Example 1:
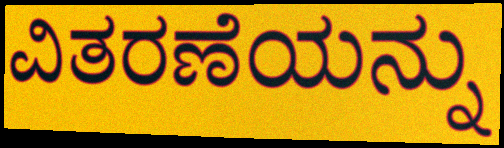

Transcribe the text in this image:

ವಿತರಣೆಯನ್ನು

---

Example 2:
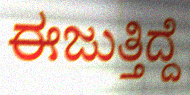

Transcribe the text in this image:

ಈಜುತ್ತಿದ್ದೆ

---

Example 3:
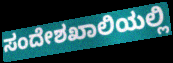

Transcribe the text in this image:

ಸಂದೇಶಖಾಲಿಯಲ್ಲಿ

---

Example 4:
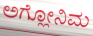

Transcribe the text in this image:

ಅಗ್ಲೋನಿಮ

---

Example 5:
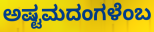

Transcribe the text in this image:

ಅಷ್ಟಮದಂಗಳೆಂಬ